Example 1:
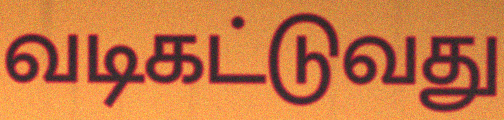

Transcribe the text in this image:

வடிகட்டுவது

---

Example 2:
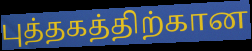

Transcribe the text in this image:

புத்தகத்திற்கான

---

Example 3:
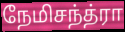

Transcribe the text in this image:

நேமிசந்த்ரா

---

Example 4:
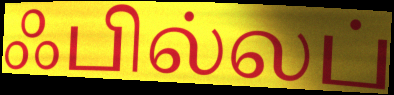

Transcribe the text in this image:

ஃபில்லப்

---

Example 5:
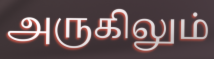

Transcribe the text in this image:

அருகிலும்